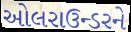
ઓલરાઉન્ડરને